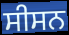
ਸੀਸਨ